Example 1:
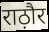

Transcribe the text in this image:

राठ़ौर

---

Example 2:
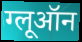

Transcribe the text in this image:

ग्लूऑन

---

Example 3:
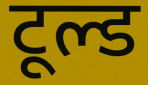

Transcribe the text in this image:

टूल्ड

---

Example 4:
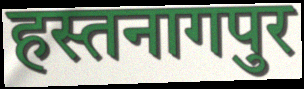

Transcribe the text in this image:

हस्तनागपुर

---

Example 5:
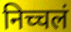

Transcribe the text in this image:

निच्चलं